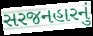
સરજનહારનું